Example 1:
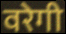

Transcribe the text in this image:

वरेगी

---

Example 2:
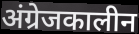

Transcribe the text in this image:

अंग्रेजकालीन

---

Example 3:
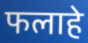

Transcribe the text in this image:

फलाहे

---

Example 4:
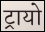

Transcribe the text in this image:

ट्रायो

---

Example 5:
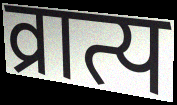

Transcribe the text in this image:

व्रात्य